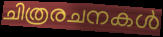
ചിത്രരചനകൾ